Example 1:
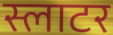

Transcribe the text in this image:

स्लाटर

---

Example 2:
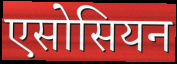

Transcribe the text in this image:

एसोसियन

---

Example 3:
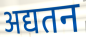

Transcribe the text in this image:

अद्यतन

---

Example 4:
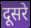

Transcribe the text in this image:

दूसरे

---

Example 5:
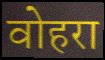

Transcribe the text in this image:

वोहरा